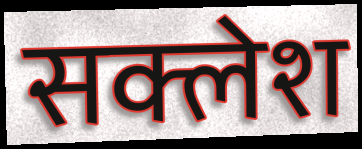
सक्लेश